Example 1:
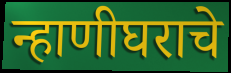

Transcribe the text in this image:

न्हाणीघराचे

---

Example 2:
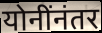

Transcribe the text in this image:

योनींनंतर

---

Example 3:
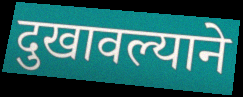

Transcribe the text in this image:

दुखावल्याने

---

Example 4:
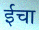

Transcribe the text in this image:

ईचा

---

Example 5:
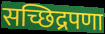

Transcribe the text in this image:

सच्छिद्रपणा